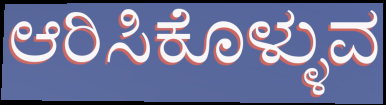
ಆರಿಸಿಕೊಳ್ಳುವ